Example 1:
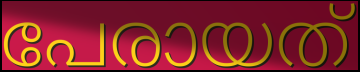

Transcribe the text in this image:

പേരായത്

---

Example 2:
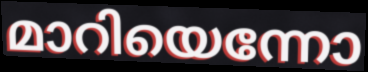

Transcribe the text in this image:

മാറിയെന്നോ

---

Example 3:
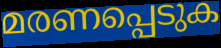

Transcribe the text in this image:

മരണപ്പെടുക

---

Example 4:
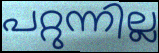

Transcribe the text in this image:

പറ്റുന്നില്ല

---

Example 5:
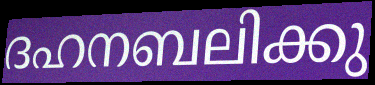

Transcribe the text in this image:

ദഹനബലിക്കു